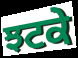
ਝਟਕੇ